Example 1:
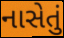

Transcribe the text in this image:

નાસેતું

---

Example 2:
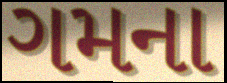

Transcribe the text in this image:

ગમના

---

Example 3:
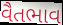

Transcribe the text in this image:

વૈતભાવ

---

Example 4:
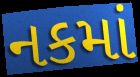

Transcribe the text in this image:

નકમાં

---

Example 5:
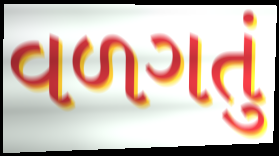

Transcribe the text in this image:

વળગતું